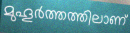
മുഹൂർത്തത്തിലാണ്